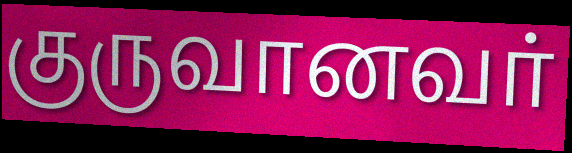
குருவானவர்